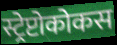
स्ट्रेप्टोकोकस